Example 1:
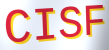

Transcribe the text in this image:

CISF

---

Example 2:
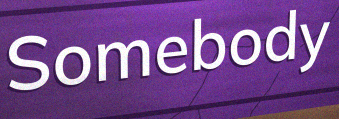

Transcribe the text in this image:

Somebody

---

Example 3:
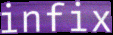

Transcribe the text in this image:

infix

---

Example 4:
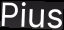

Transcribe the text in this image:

Pius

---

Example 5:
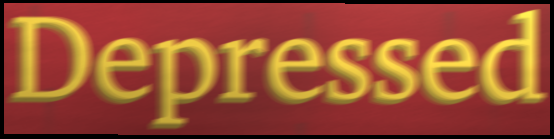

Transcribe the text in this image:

Depressed